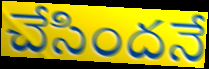
చేసిందనే